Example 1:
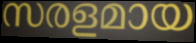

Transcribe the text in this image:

സരളമായ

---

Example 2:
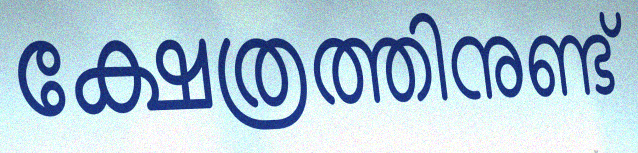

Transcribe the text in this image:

ക്ഷേത്രത്തിനുണ്ട്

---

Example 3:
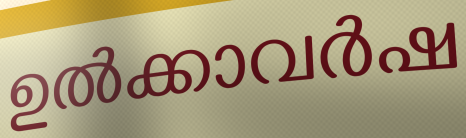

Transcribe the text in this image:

ഉൽക്കാവർഷ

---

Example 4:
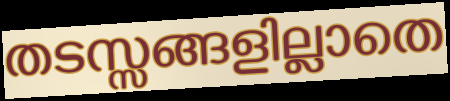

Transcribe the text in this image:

തടസ്സങ്ങളില്ലാതെ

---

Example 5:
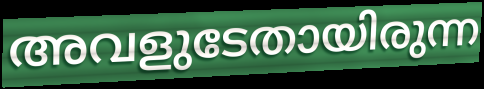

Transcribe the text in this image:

അവളുടേതായിരുന്ന